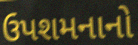
ઉપશમનાનો